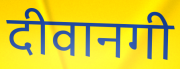
दीवानगी